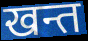
खन्त